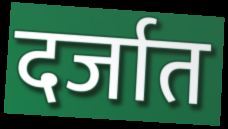
दर्जात